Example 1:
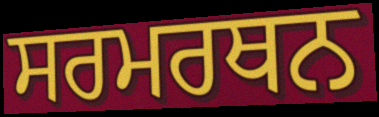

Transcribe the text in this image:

ਸਰਮਰਥਨ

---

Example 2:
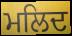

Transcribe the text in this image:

ਮਲਿਦ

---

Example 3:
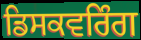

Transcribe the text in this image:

ਡਿਸਕਵਰਿੰਗ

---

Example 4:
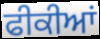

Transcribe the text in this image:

ਫੀਕੀਆਂ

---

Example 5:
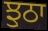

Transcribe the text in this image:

ਝੁਠਾ